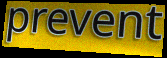
prevent